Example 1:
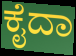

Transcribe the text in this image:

ಕೈದಾ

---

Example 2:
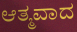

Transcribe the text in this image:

ಆತ್ಮವಾದ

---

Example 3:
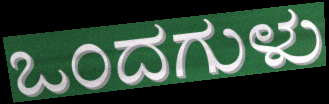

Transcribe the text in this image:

ಒಂದಗುಳು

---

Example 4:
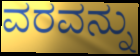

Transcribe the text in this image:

ವರವನ್ನು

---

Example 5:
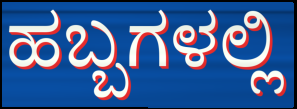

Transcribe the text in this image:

ಹಬ್ಬಗಳಲ್ಲಿ